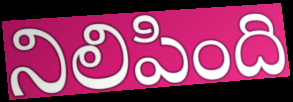
నిలిపింది